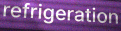
refrigeration